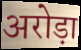
अरोड़ा